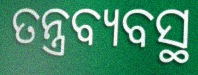
ତନ୍ତ୍ରବ୍ୟବସ୍ଥ